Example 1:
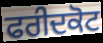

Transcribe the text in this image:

ਫਰੀਦਕੋਟ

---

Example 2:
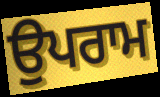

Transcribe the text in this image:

ਉਪਰਾਮ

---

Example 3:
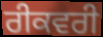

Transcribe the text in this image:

ਰੀਕਵਰੀ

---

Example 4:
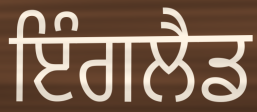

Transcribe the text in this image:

ਇੰਗਲੈਡ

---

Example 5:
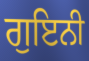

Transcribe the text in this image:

ਗੁਇਨੀ